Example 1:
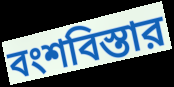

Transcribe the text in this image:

বংশবিস্তার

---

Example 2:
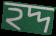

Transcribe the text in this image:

হদ্দ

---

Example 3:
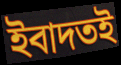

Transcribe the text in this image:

ইবাদতই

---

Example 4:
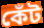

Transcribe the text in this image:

কেঁট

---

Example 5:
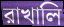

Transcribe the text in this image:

রাখালি